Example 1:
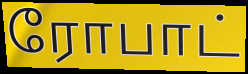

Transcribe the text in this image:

ரோபாட்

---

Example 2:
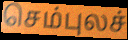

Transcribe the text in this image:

செம்புலச்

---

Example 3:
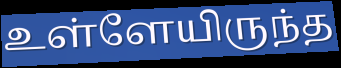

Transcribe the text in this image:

உள்ளேயிருந்த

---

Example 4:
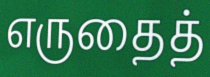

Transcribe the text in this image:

எருதைத்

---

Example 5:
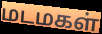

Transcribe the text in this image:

மடமகள்